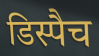
डिस्पैच